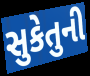
સુકેતુની